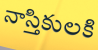
నాస్తికులకి